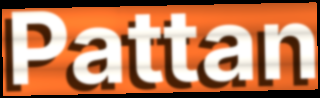
Pattan